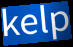
kelp